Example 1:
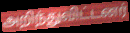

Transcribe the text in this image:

அறிந்துவிட்டனர்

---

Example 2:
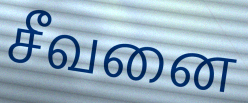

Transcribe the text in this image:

சீவனை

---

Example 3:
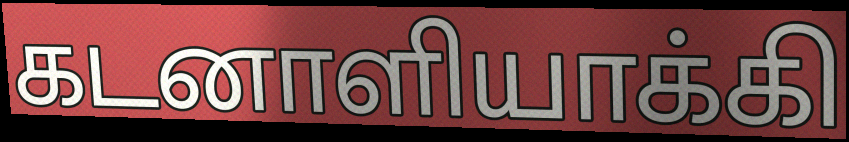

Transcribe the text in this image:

கடனாளியாக்கி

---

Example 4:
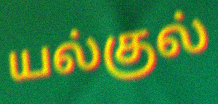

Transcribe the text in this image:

யல்குல்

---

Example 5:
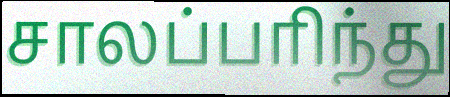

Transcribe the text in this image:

சாலப்பரிந்து